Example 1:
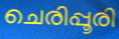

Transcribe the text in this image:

ചെരിപ്പൂരി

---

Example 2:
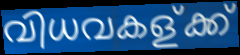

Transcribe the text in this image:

വിധവകള്ക്ക്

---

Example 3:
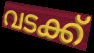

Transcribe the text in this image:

വടക്ക്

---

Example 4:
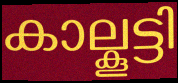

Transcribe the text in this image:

കാല്കൂട്ടി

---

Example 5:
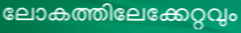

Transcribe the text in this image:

ലോകത്തിലേക്കേറ്റവും